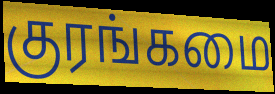
குரங்கமை